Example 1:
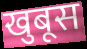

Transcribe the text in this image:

खुबूस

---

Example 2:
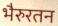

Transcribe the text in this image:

भैरुरतन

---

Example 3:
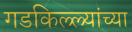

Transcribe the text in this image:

गडकिल्ल्यांच्या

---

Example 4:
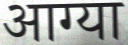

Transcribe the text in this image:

आग्या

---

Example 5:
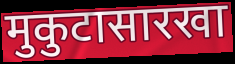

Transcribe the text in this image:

मुकुटासारखा